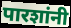
पारशांनी